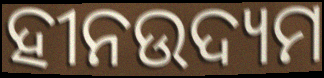
ହୀନଉଦ୍ୟମ